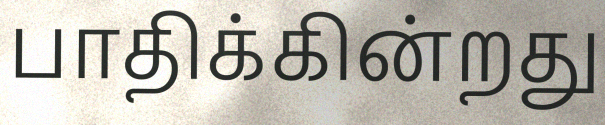
பாதிக்கின்றது